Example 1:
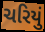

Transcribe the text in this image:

ચરિયું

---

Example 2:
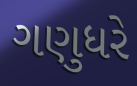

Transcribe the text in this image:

ગણુધરે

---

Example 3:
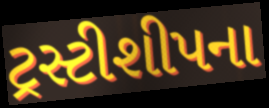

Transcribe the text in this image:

ટ્રસ્ટીશીપના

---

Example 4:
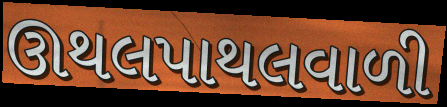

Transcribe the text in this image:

ઊથલપાથલવાળી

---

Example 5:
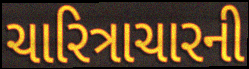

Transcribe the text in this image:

ચારિત્રાચારની